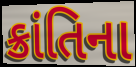
ક્રાંતિના